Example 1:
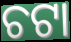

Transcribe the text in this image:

ଚଟା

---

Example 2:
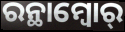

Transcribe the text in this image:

ରନ୍ଥାମ୍ବୋର୍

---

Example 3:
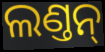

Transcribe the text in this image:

ଲଣ୍ତନ୍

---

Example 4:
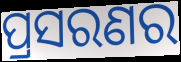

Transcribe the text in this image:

ପ୍ରସରଣର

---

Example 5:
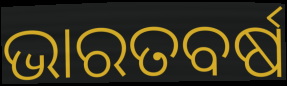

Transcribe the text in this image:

ଭାରତବର୍ଷ